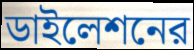
ডাইলেশনের